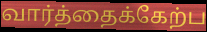
வார்த்தைக்கேற்ப